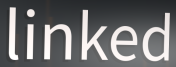
linked